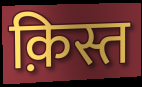
क़िस्त